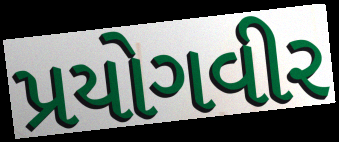
પ્રયોગવીર